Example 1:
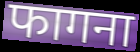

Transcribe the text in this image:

फागना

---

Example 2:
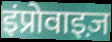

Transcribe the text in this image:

इंप्रोवाइज़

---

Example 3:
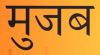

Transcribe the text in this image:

मुजब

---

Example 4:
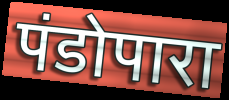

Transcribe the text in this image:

पंडोपारा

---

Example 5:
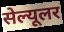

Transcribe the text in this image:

सेल्यूलर